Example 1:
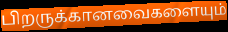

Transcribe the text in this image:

பிறருக்கானவைகளையும்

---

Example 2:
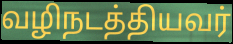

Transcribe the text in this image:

வழிநடத்தியவர்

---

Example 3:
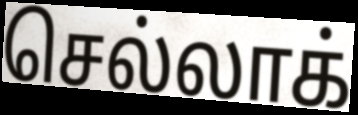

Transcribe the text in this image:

செல்லாக்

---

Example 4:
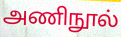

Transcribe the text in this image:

அணிநூல்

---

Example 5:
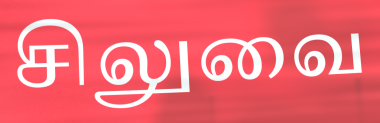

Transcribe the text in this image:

சிலுவை